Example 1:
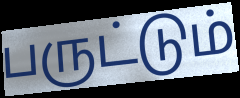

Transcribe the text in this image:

பருட்டும்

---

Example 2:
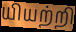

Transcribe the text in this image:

யியற்றி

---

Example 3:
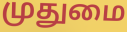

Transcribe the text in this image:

முதுமை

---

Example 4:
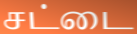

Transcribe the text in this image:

சட்டை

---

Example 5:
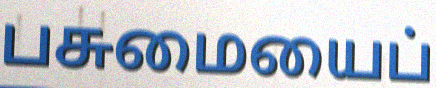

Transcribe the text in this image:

பசுமையைப்